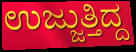
ಉಜ್ಜುತ್ತಿದ್ದ